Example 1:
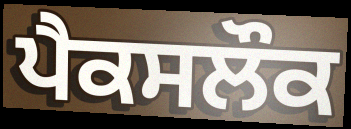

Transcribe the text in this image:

ਪੈਕਸਲੌਕ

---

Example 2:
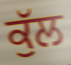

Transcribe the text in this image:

ਕੁੱਲ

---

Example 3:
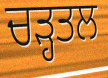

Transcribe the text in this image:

ਚੜ੍ਹਤਲ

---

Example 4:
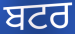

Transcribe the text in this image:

ਬਟਰ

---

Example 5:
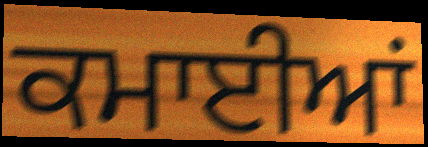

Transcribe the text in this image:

ਕਮਾਈਆਂ